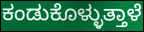
ಕಂಡುಕೊಳ್ಳುತ್ತಾಳೆ